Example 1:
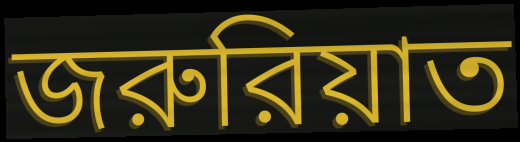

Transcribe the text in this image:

জরুরিয়াত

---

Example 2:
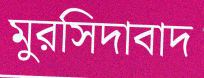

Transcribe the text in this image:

মুরসিদাবাদ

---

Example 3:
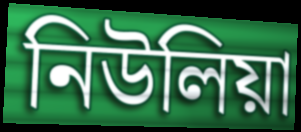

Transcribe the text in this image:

নিউলিয়া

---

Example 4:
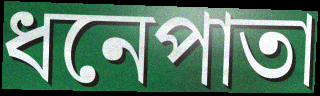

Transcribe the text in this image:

ধনেপাতা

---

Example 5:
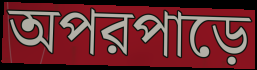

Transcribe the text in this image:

অপরপাড়ে